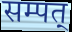
सम्पत्